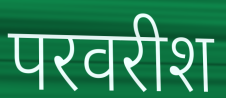
परवरीश